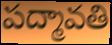
పద్మావతి